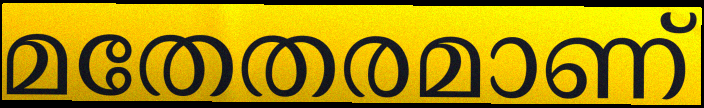
മതേതരമാണ്